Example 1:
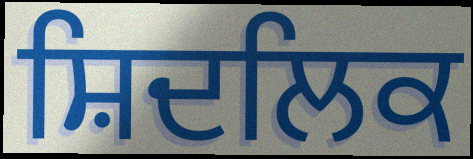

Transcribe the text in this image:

ਸ਼ਿਦਲਿਕ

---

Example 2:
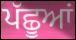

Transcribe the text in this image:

ਪੱਛੂਆਂ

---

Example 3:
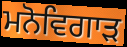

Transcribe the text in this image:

ਮਨੋਵਿਗਾੜ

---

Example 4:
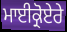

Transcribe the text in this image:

ਮਾਈਕ੍ਰੋਏਰੇ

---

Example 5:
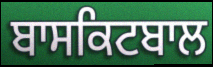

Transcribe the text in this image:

ਬਾਸਕਿਟਬਾਲ